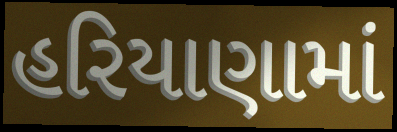
હરિયાણામાં